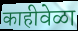
काहीवेळा